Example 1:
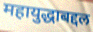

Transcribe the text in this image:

महायुद्धाबद्दल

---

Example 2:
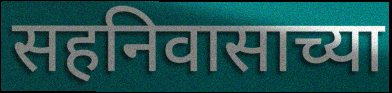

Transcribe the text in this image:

सहनिवासाच्या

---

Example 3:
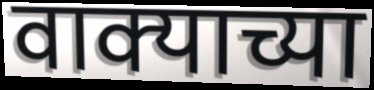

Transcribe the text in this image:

वाक्याच्या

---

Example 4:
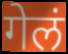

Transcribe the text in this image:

गेलं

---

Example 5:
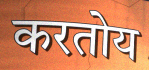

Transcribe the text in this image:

करतोय